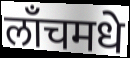
लाँचमधे